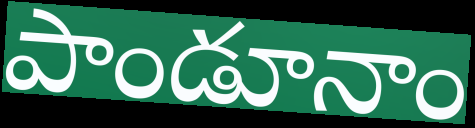
పాండూనాం